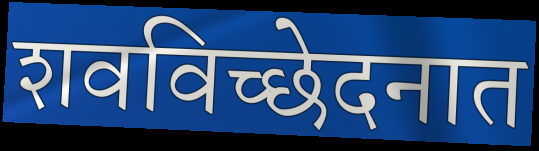
शवविच्छेदनात